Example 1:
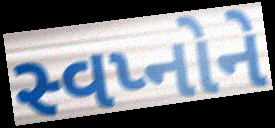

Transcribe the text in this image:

સ્વપ્નોને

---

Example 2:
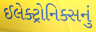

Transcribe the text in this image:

ઈલેક્ટ્રોનિક્સનું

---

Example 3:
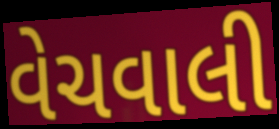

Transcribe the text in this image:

વેચવાલી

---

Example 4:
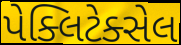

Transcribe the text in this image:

પેક્લિટેક્સેલ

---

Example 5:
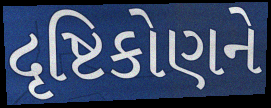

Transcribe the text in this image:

દૃષ્ટિકોણને